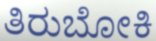
ತಿರುಬೋಕಿ